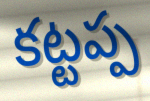
కట్టప్ప